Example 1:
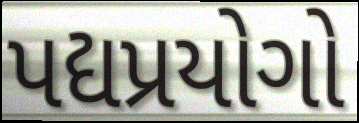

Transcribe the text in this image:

પદ્યપ્રયોગો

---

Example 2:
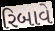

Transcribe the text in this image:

રિબાવે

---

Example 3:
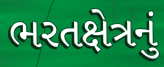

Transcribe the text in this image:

ભરતક્ષેત્રનું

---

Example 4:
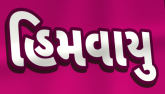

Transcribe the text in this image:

હિમવાયુ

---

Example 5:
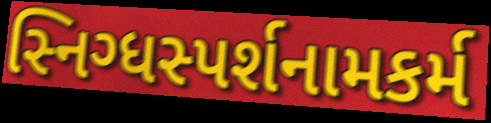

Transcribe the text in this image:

સ્નિગ્ધસ્પર્શનામકર્મ